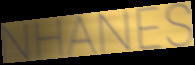
NHANES